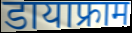
डायाफ्राम